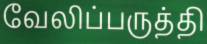
வேலிப்பருத்தி